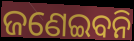
ଜଣେଇବନି